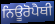
ਨਿਊਰੋਪੈਥੀ